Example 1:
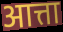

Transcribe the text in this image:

आत्ता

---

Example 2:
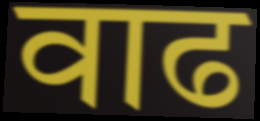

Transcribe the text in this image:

वाढ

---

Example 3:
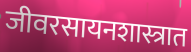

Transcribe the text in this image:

जीवरसायनशास्त्रात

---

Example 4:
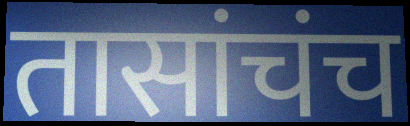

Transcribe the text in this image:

तासांचंच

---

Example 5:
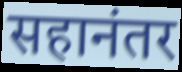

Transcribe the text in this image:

सहानंतर